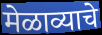
मेळाव्याचे